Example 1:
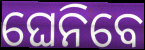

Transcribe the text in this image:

ଘେନିବେ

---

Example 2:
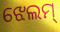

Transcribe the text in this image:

ଝେଲମ୍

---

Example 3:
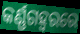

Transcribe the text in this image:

କର୍ଣ୍ଣଗହ୍ଵରରେ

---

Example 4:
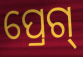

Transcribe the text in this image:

ପ୍ରେଗ୍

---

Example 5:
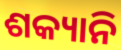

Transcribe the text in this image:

ଶକ୍ୟାନି